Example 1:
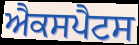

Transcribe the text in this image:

ਐਕਸਪੈਟਸ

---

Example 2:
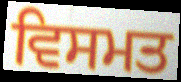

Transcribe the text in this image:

ਵਿਸਮਤ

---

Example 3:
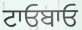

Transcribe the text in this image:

ਟਾਓਬਾਓ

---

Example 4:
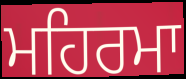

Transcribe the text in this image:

ਮਹਿਰਮਾ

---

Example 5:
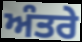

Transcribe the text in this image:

ਅੰਤਰੇ